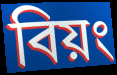
বিয়ং